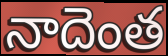
నాదెంత